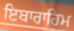
ਇਬਾਰਾਹਿਮ